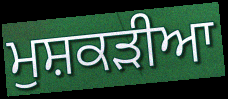
ਮੁਸ਼ਕੜੀਆ